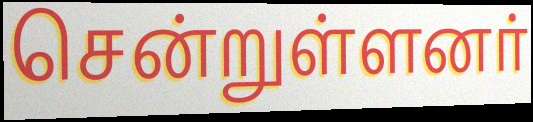
சென்றுள்ளனர்